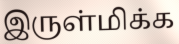
இருள்மிக்க